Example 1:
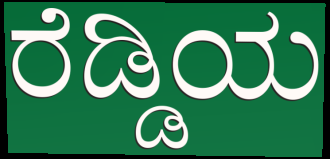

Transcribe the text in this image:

ರೆಡ್ಡಿಯ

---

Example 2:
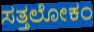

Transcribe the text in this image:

ಸತ್ತಲೋಕಂ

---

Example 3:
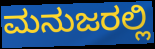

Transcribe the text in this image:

ಮನುಜರಲ್ಲಿ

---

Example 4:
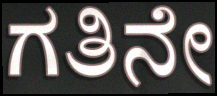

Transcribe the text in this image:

ಗತಿನೇ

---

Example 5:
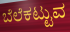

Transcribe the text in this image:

ಬೆಲೆಕಟ್ಟುವ